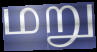
மறு